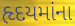
હૃદયમાંના